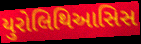
યુરોલિથિઆસિસ